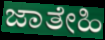
ಜಾತೇಹಿ